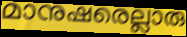
മാനുഷരെല്ലാരു